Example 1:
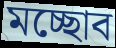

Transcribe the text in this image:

মচ্ছোব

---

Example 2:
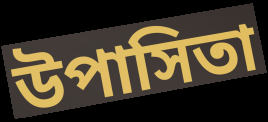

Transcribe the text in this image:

উপাসিতা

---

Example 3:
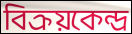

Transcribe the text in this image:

বিক্রয়কেন্দ্র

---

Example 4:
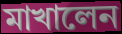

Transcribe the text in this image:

মাখালেন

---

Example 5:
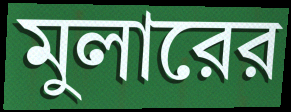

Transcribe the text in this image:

মুলারের